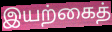
இயற்கைத்